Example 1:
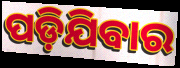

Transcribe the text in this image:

ପଡ଼ିଯିବାର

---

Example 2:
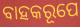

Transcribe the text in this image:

ବାହକରୂପେ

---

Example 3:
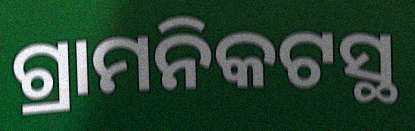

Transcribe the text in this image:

ଗ୍ରାମନିକଟସ୍ଥ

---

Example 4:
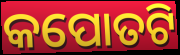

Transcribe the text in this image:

କପୋତଟି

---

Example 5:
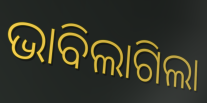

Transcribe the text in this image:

ଭାବିଲାଗିଲା